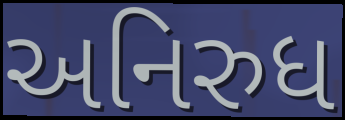
અનિરુધ